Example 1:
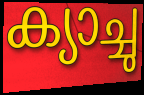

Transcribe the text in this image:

ക്യാച്ചു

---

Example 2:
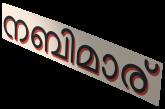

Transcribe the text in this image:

നബിമാര്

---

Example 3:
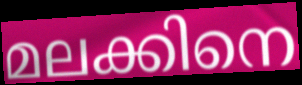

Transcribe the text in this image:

മലക്കിനെ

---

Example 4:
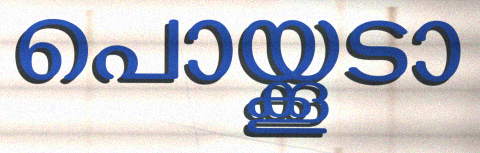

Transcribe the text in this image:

പൊയ്ക്കൂടാ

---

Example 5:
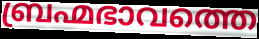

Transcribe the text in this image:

ബ്രഹ്മഭാവത്തെ